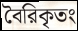
বৈরিকৃতং